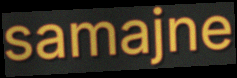
samajne